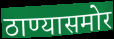
ठाण्यासमोर